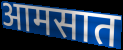
आमसात